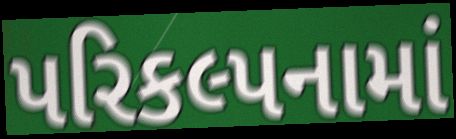
પરિકલ્પનામાં